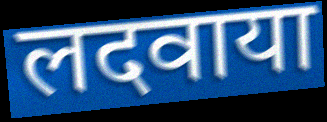
लदवाया